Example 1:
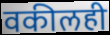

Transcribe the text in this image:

वकीलही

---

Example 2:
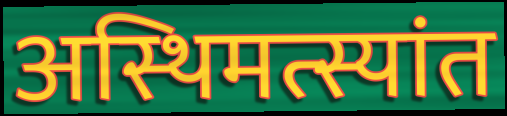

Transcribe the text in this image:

अस्थिमत्स्यांत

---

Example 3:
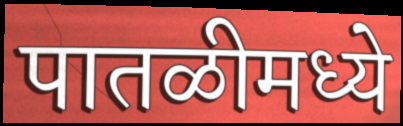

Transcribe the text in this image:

पातळीमध्ये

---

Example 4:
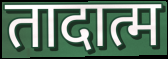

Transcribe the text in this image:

तादात्म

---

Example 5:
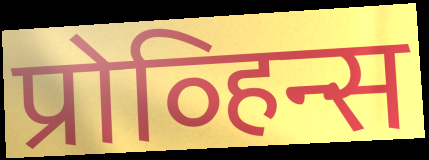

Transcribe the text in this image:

प्रोव्हिन्स